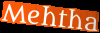
Mehtha